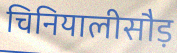
चिनियालीसौड़